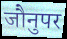
जौनुपर